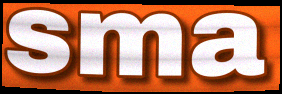
sma